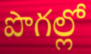
పొగల్లో